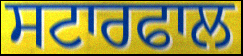
ਸਟਾਰਫਾਲ